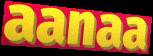
aanaa